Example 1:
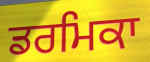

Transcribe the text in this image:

ਡਰਮਿਕਾ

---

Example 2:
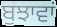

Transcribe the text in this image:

ਬੁਝਾਵਾਂ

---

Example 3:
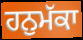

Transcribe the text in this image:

ਹਨੁਮੱਕਾ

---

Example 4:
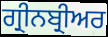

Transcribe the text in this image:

ਗ੍ਰੀਨਬ੍ਰੀਅਰ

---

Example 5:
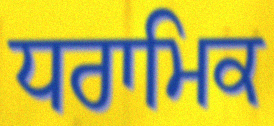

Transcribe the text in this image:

ਧਰਾਮਿਕ